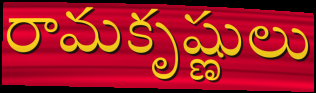
రామకృష్ణులు